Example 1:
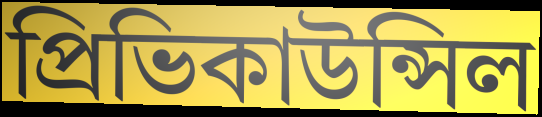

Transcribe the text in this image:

প্রিভিকাউন্সিল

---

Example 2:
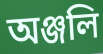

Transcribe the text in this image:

অঞ্জলি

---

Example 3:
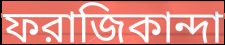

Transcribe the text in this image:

ফরাজিকান্দা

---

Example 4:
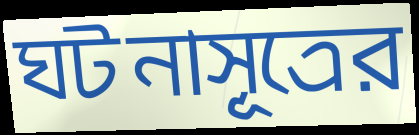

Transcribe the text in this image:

ঘটনাসূত্রের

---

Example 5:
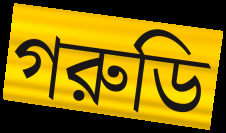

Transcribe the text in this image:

গরুডি